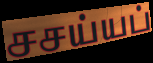
சசய்யப்